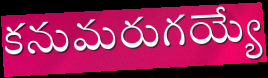
కనుమరుగయ్యే